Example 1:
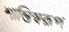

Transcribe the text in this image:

শান্তিস্বরূপ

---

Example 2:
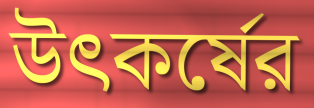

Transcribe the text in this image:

উৎকর্ষের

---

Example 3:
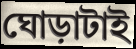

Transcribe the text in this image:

ঘোড়াটাই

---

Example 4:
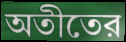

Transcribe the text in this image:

অতীতের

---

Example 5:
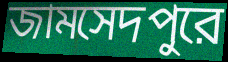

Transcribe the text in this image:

জামসেদপুরে